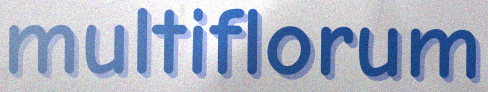
multiflorum